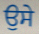
ਉਸੇ